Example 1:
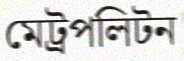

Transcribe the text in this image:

মেট্রপলিটন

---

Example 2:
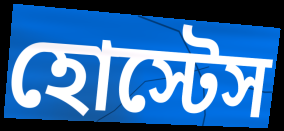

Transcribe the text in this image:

হোস্টেস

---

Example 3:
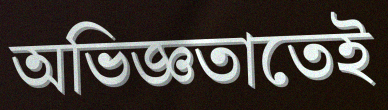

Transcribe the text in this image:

অভিজ্ঞতাতেই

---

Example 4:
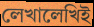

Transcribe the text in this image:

লেখালেখিই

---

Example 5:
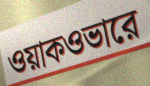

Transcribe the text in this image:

ওয়াকওভারে